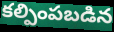
కల్పింపబడిన